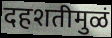
दहशतीमुळं